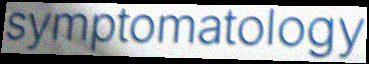
symptomatology